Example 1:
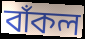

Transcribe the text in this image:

বাঁকল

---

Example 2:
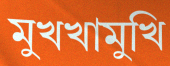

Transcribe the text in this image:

মুখখামুখি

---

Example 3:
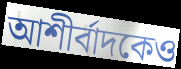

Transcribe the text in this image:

আশীর্বাদকেও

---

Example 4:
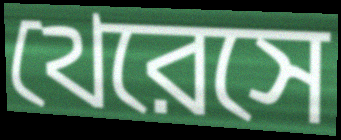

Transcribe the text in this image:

থেরেসে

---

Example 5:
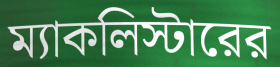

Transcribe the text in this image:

ম্যাকলিস্টারের